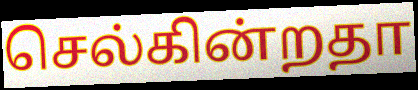
செல்கின்றதா